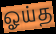
ஓய்த